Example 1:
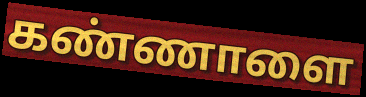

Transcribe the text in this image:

கண்ணாளை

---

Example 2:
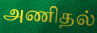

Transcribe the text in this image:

அணிதல்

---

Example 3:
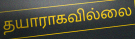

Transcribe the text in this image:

தயாராகவில்லை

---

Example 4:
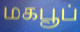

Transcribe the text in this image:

மகபூப்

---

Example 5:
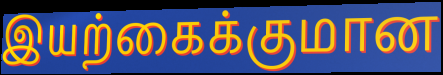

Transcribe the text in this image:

இயற்கைக்குமான